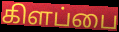
கிளப்பை